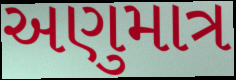
અણુમાત્ર